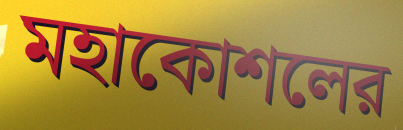
মহাকোশলের